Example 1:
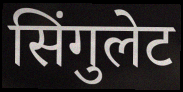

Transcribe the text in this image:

सिंगुलेट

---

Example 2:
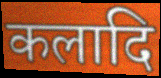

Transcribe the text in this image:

कलादि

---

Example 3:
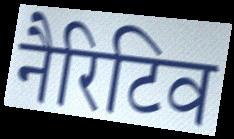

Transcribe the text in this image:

नैरिटिव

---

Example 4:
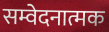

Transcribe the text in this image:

सम्वेदनात्मक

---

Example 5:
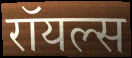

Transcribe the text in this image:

रॉयल्स